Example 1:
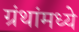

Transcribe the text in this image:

ग्रंथांमध्ये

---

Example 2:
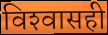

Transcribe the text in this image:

विश्वासही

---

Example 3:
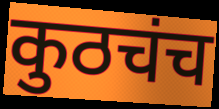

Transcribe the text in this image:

कुठचंच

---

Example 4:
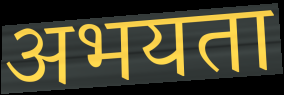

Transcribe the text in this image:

अभयता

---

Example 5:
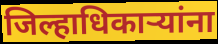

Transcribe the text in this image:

जिल्हाधिकाऱ्यांना